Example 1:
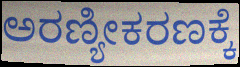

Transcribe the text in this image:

ಅರಣ್ಯೀಕರಣಕ್ಕೆ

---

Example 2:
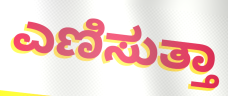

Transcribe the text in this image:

ಎಣಿಸುತ್ತಾ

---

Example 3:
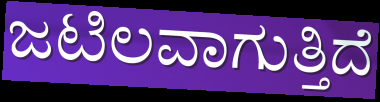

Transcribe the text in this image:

ಜಟಿಲವಾಗುತ್ತಿದೆ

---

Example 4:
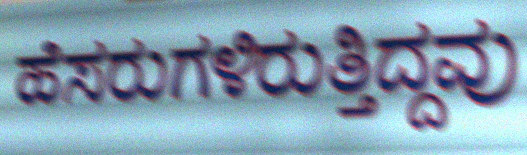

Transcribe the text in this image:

ಹೆಸರುಗಳಿರುತ್ತಿದ್ದವು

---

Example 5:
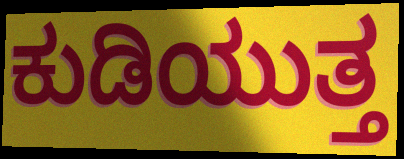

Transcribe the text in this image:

ಕುಡಿಯುತ್ತ